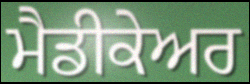
ਮੈਡੀਕੇਅਰ